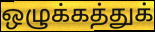
ஒழுக்கத்துக்